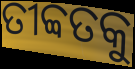
ତୀବ୍ବତକୁ